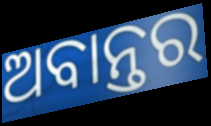
ଅବାନ୍ତର